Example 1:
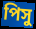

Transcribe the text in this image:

পিসু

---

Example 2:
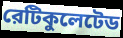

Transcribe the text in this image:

রেটিকুলেটেড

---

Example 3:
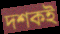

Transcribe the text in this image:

দশকই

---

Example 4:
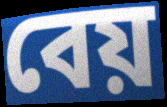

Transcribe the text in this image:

বেয়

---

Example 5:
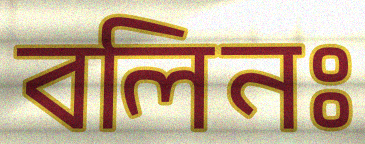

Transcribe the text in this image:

বলিনঃ